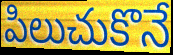
పిలుచుకొనే